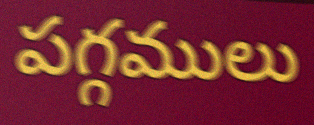
పగ్గములు